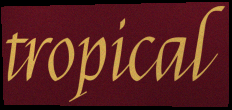
tropical